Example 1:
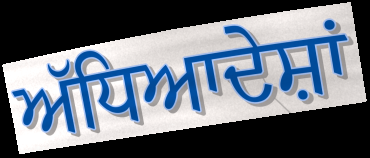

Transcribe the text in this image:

ਅੱਧਿਆਦੇਸ਼ਾਂ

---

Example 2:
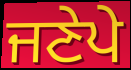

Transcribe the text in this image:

ਜਣੇਪੇ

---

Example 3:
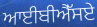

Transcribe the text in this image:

ਆਈਬੀਐੱਸਏ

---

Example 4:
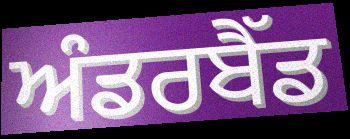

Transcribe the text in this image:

ਅੰਡਰਬੈੱਡ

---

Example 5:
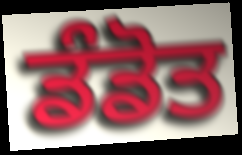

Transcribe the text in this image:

ਡੰਡੋਤ